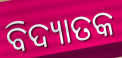
ବିଦ୍ୟାତକ